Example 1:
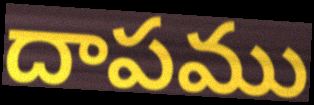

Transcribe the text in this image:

దాపము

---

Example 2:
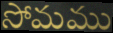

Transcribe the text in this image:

సోమము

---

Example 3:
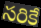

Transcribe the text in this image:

సరికే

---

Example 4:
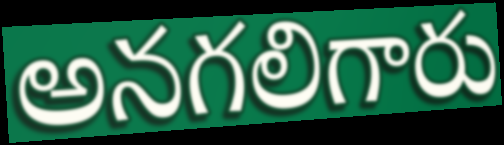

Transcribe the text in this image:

అనగలిగారు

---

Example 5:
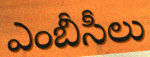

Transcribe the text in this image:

ఎంబీసీలు